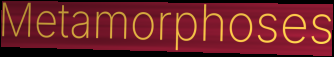
Metamorphoses